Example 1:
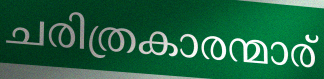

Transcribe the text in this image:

ചരിത്രകാരന്മാര്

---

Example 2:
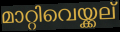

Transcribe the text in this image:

മാറ്റിവെയ്ക്കല്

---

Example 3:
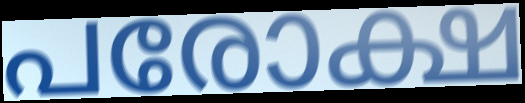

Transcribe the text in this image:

പരോക്ഷ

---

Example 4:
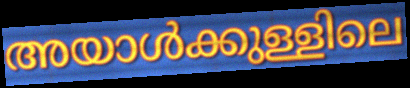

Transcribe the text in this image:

അയാൾക്കുള്ളിലെ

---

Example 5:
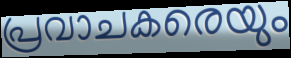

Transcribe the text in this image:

പ്രവാചകരെയും